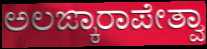
ಅಲಙ್ಕಾರಾಪೇತ್ವಾ